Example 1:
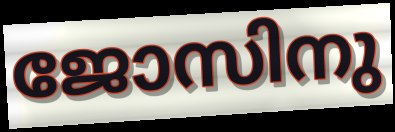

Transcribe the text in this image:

ജോസിനു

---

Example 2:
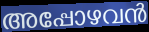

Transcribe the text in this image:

അപ്പോഴവൻ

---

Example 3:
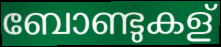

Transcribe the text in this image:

ബോണ്ടുകള്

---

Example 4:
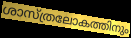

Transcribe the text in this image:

ശാസ്ത്രലോകത്തിനും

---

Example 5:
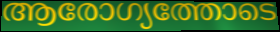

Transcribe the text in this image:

ആരോഗ്യത്തോടെ